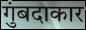
गुंबदाकार